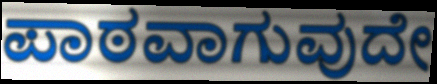
ಪಾಠವಾಗುವುದೇ